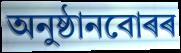
অনুষ্ঠানবোৰৰ